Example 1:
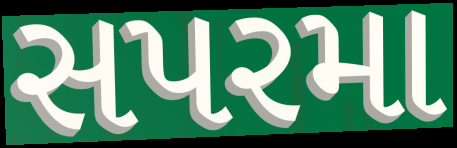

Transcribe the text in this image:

સપરમા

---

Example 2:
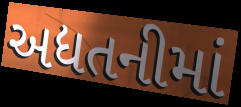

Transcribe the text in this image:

અદ્યતનીમાં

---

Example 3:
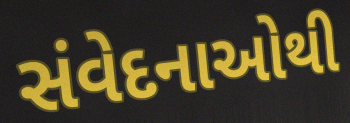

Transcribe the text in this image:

સંવેદનાઓથી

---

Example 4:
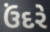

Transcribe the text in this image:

ઉંદરે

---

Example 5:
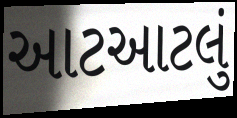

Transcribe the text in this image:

આટઆટલું